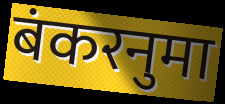
बंकरनुमा